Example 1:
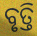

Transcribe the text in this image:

ବୃତ୍ତି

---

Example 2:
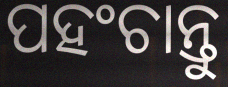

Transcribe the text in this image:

ପହଂଚାନ୍ତୁ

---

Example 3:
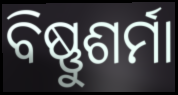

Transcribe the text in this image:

ବିଷ୍ଣୁଶର୍ମା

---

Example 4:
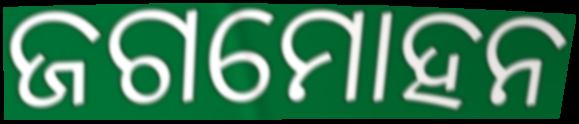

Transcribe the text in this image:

ଜଗମୋହନ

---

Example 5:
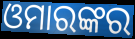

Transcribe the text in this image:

ଓମାରଙ୍କର